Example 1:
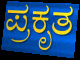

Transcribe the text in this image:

ಪ್ರಕೃತ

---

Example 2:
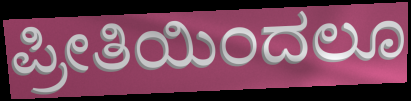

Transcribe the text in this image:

ಪ್ರೀತಿಯಿಂದಲೂ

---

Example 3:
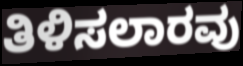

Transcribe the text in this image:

ತಿಳಿಸಲಾರವು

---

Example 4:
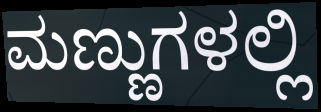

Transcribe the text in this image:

ಮಣ್ಣುಗಳಲ್ಲಿ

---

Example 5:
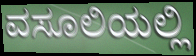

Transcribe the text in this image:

ವಸೂಲಿಯಲ್ಲಿ